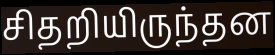
சிதறியிருந்தன